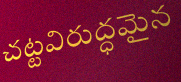
చట్టవిరుద్ధమైన